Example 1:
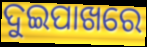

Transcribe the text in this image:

ଦୁଇପାଖରେ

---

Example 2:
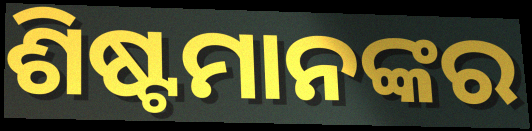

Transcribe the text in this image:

ଶିଷ୍ଟମାନଙ୍କର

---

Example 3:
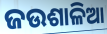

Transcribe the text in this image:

ଜଉଶାଳିଆ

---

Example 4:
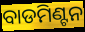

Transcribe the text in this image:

ବାଡମିଣ୍ଟନ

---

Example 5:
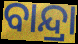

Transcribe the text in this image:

ବାନ୍ଦ୍ରା